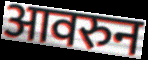
आवरुन